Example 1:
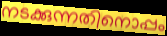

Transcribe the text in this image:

നടക്കുന്നതിനൊപ്പം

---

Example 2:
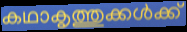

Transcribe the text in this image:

കഥാകൃത്തുക്കൾക്ക്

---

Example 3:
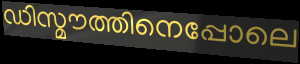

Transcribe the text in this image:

ഡിസ്മൗത്തിനെപ്പോലെ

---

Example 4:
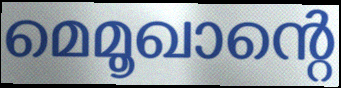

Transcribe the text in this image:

മെമൂഖാന്റെ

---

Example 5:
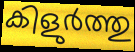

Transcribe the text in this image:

കിളുർത്തു